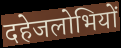
दहेजलोभियों